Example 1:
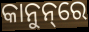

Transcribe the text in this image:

କାନୁନ୍‌ରେ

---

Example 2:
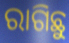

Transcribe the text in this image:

ରାଗିଛୁ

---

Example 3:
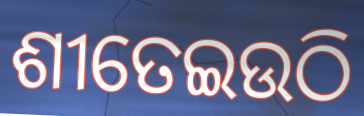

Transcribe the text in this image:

ଶୀତେଇଉଠି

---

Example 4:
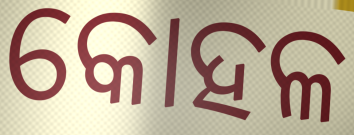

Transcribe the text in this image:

କୋହଳ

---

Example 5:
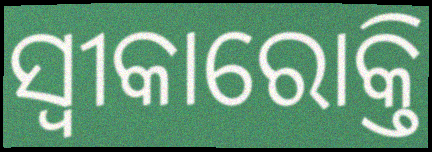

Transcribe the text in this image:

ସ୍ୱୀକାରୋକ୍ତି